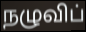
நழுவிப்